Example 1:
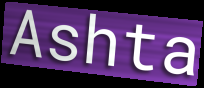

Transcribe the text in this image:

Ashta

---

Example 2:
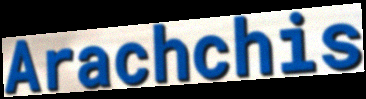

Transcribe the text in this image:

Arachchis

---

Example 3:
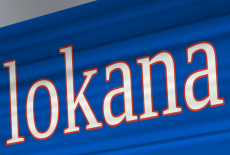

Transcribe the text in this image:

lokana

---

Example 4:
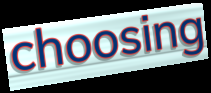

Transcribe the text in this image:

choosing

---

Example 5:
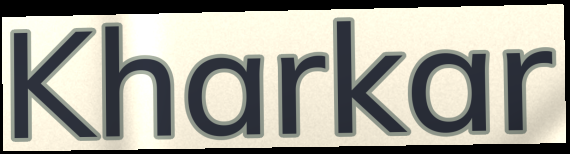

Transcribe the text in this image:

Kharkar